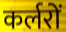
कर्लरों